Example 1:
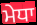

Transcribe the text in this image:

ਮੇਧਾ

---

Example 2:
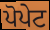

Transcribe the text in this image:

ਪੋਪੇਟ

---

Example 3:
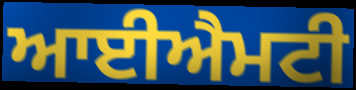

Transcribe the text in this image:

ਆਈਐਮਟੀ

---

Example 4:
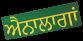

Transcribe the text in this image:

ਐਨਾਲਾਗਾਂ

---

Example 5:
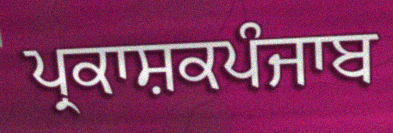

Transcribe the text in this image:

ਪ੍ਰਕਾਸ਼ਕਪੰਜਾਬ